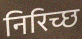
निरिच्छ